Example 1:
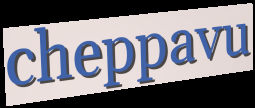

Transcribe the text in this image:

cheppavu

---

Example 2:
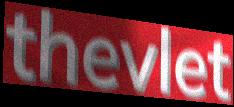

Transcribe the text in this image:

thevlet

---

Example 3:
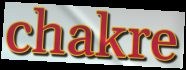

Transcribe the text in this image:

chakre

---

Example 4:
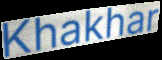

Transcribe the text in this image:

Khakhar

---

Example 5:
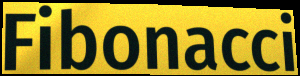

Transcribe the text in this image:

Fibonacci